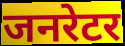
जनरेटर